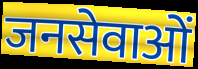
जनसेवाओं